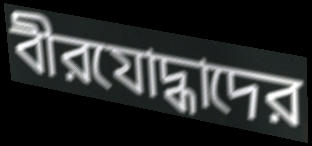
বীরযোদ্ধাদের